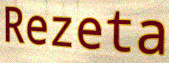
Rezeta